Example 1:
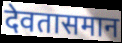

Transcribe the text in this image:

देवतासमान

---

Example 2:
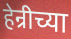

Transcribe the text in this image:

हेन्रीच्या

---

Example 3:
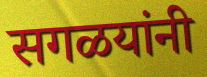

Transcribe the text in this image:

सगळयांनी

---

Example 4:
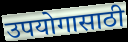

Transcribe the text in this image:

उपयोगासाठी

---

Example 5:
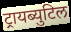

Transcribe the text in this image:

ट्रायब्युटिल